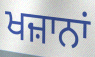
ਖਜ਼ਾਨਾਂ